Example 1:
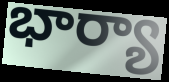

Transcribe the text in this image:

భార్యా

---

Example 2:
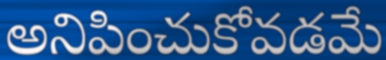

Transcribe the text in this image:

అనిపించుకోవడమే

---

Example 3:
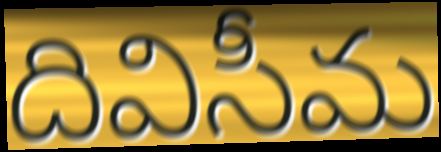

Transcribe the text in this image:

దివిసీమ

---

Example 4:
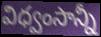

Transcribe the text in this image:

విధ్వంసాన్నీ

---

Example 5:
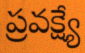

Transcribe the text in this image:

ప్రవక్ష్యే